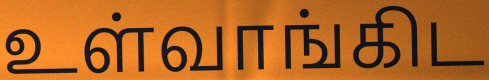
உள்வாங்கிட